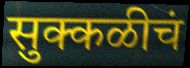
सुक्कळीचं